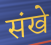
संखे